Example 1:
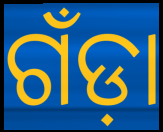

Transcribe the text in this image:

ଗଁଡ଼ା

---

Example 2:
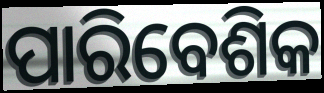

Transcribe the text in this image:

ପାରିବେଶିକ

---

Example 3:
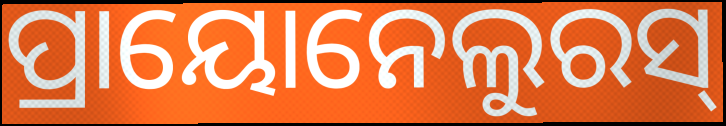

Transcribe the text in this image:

ପ୍ରାୟୋନେଲୁରସ୍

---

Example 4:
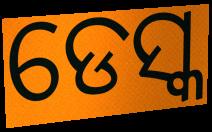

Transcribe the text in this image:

ଡେସ୍କ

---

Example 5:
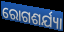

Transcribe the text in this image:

ରୋଗଶର୍ଯ୍ୟା